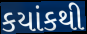
કયાંકથી